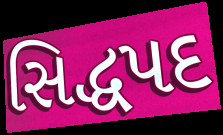
સિદ્ધપદ